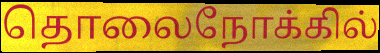
தொலைநோக்கில்